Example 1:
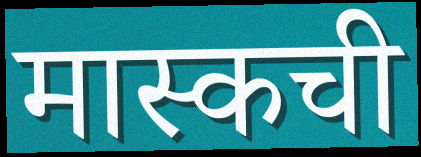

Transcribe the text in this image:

मास्कची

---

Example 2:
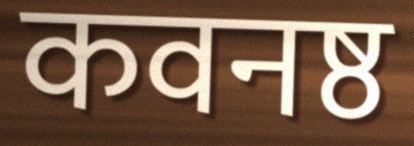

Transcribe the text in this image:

कवनष्ठ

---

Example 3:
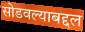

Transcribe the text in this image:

सोडवल्याबद्दल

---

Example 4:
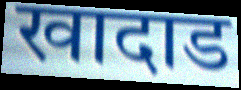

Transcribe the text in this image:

खादाड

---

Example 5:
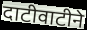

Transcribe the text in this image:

दाटीवाटीने